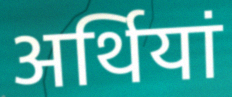
अर्थियां